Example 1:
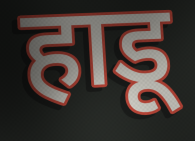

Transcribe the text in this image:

हाडू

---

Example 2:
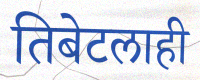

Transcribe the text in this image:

तिबेटलाही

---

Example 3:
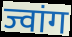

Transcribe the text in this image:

ज्वांग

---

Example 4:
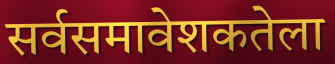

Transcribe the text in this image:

सर्वसमावेशकतेला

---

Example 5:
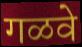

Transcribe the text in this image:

गळवे